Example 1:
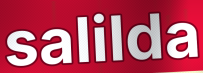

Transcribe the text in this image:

salilda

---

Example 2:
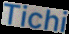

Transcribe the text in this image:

Tichi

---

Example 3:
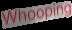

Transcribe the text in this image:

Whooping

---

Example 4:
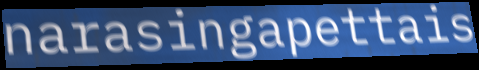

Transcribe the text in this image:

narasingapettais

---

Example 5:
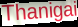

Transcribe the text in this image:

Thanigai